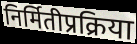
निर्मितीप्रक्रिया